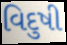
વિદુષી